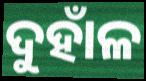
ଦୁହାଁଳ